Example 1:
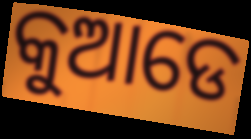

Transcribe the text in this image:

କୁଆଡେ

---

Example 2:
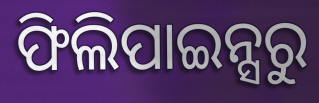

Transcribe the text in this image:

ଫିଲିପାଇନ୍ସରୁ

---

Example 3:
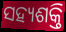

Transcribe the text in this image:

ସହ୍ୟଶକ୍ତି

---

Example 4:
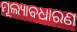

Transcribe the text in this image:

ମୂଲ୍ୟାବଧାରଣ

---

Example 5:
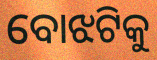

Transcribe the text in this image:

ବୋଝଟିକୁ